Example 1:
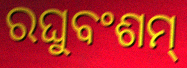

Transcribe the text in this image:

ରଘୁବଂଶମ୍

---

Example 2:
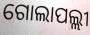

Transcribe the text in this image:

ଗୋଲାପଲ୍ଲୀ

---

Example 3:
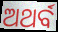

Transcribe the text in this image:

ଅଥର୍ବ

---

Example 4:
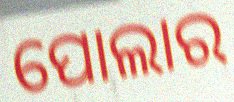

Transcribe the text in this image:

ପୋଲାର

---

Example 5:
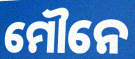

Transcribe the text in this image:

ମୌନେ